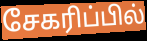
சேகரிப்பில்